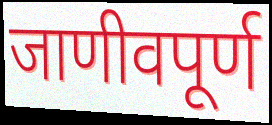
जाणीवपूर्ण